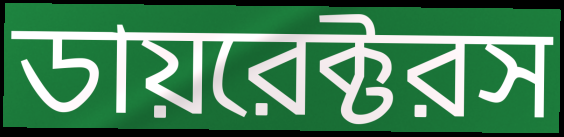
ডায়রেক্টরস